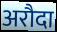
अरौदा